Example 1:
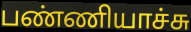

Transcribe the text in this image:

பண்ணியாச்சு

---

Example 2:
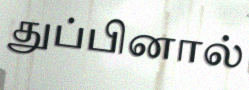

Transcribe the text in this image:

துப்பினால்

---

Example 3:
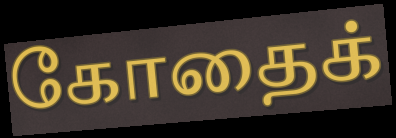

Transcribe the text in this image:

கோதைக்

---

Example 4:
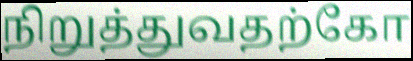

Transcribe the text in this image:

நிறுத்துவதற்கோ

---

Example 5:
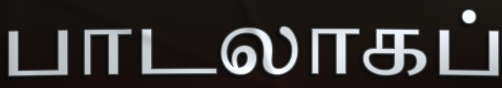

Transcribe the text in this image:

பாடலாகப்